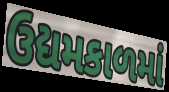
ઉદ્યમકાળમાં